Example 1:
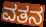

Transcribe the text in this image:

ವತನ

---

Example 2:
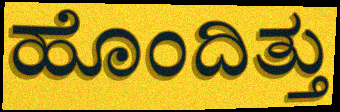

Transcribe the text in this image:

ಹೊಂದಿತ್ತು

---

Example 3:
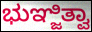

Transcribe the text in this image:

ಭುಞ್ಜಿತ್ವಾ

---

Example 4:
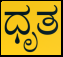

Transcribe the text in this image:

ಧೃತ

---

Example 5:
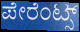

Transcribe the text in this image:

ಪೇರೆಂಟ್ಸ್